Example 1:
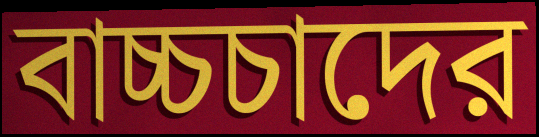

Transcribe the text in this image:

বাচ্চচাদের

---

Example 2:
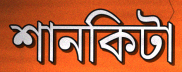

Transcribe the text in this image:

শানকিটা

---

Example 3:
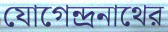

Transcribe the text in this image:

যোগেন্দ্রনাথের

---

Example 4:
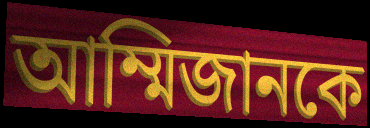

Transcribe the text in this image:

আম্মিজানকে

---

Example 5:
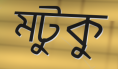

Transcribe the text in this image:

মটুকু